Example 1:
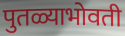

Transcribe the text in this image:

पुतळ्याभोवती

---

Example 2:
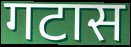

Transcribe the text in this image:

गटास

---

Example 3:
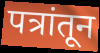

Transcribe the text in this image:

पत्रांतून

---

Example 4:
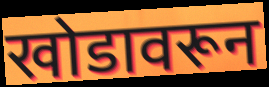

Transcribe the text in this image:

खोडावरून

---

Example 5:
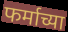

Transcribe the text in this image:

फर्माच्या